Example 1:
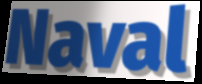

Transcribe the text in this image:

Naval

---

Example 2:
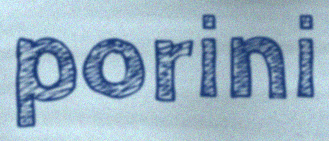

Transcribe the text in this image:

porini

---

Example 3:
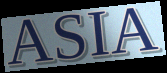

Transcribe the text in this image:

ASIA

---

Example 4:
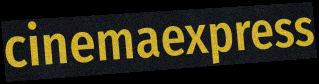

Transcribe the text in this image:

cinemaexpress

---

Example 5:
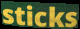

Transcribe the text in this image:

sticks